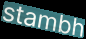
stambh